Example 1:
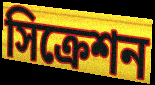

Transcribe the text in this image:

সিক্রেশন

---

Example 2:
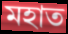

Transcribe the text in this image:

মহাত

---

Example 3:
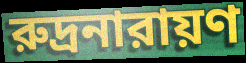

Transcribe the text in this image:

রুদ্রনারায়ণ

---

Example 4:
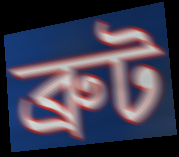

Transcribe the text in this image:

ব্রুট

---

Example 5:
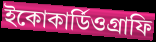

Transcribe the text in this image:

ইকোকার্ডিওগ্রাফি